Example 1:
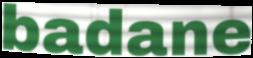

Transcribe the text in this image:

badane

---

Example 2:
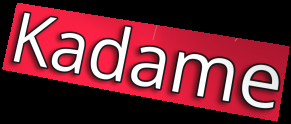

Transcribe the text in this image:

Kadame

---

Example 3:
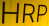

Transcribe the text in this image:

HRP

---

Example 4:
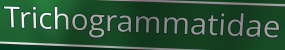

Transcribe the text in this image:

Trichogrammatidae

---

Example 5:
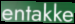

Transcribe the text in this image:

entakke